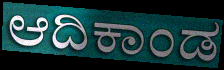
ಆದಿಕಾಂಡ